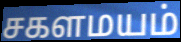
சகளமயம்